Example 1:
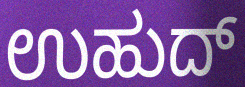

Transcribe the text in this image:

ಉಹುದ್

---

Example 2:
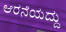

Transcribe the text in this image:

ಆರನೆಯದ್ದು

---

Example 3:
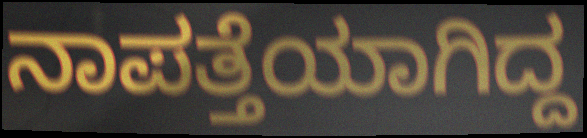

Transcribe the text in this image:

ನಾಪತ್ತೆಯಾಗಿದ್ದ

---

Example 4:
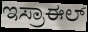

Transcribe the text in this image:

ಇಸ್ರಾಈಲ್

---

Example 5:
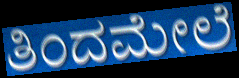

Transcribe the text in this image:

ತಿಂದಮೇಲೆ